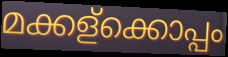
മക്കള്ക്കൊപ്പം